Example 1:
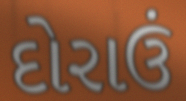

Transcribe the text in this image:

દોરાઉં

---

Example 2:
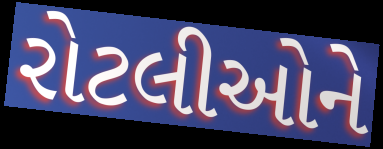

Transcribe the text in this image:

રોટલીઓને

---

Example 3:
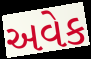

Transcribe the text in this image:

અવેક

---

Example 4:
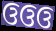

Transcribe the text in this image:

ઉઉઉ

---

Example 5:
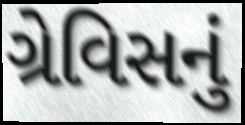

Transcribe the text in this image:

ગ્રેવિસનું